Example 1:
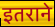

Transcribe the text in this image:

इतराने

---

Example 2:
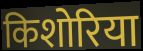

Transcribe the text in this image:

किशोरिया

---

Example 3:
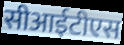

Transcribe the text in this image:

सीआईटीएस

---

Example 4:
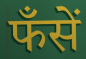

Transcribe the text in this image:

फँसें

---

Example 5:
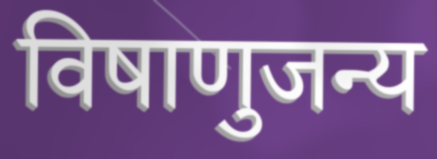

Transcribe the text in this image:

विषाणुजन्य